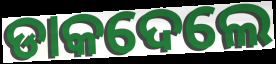
ଡାକଦେଲେ